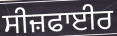
ਸੀਜ਼ਫਾਈਰ